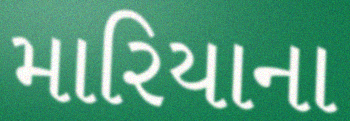
મારિયાના